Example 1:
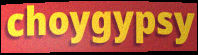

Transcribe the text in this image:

choygypsy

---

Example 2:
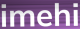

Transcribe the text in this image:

imehi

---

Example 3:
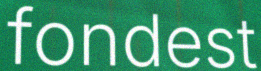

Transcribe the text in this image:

fondest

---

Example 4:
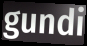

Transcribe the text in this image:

gundi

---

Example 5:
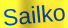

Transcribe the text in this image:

Sailko